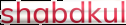
shabdkul